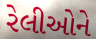
રેલીઓને